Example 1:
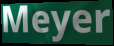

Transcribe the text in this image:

Meyer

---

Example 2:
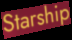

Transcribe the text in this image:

Starship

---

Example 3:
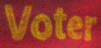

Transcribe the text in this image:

Voter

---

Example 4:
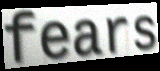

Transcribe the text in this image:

fears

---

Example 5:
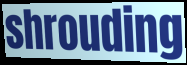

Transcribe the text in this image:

shrouding